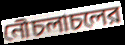
নৌচলাচলের